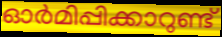
ഓർമിപ്പിക്കാറുണ്ട്